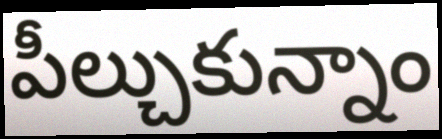
పీల్చుకున్నాం